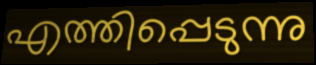
എത്തിപ്പെടുന്നു